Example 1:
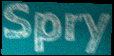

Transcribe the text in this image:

Spry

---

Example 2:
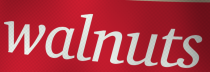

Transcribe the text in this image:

walnuts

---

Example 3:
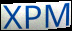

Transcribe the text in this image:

XPM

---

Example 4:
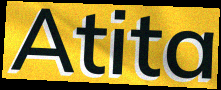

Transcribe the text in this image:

Atita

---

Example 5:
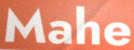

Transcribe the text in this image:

Mahe